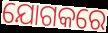
ଯୋଗକରେ